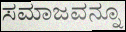
ಸಮಾಜವನ್ನೂ